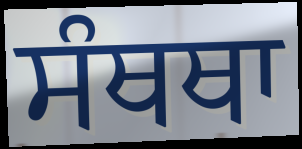
ਸੰਥਥਾ